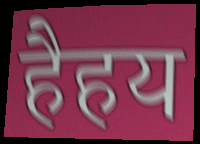
हैहय